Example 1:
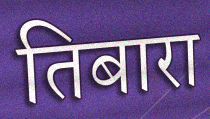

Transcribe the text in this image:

तिबारा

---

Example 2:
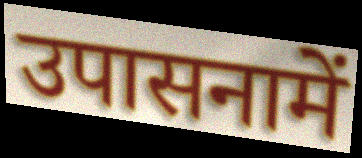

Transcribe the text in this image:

उपासनामें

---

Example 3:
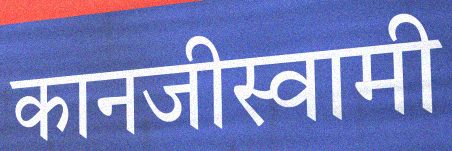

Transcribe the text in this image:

कानजीस्वामी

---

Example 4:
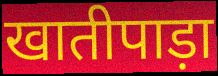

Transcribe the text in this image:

खातीपाड़ा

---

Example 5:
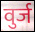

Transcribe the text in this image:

वुर्ज